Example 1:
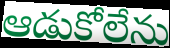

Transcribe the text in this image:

ఆడుకోలేను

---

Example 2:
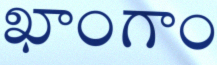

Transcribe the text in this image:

ఖాంగాం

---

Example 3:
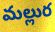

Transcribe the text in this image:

మల్లుర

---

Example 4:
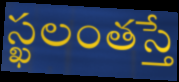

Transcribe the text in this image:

స్ఖలంతస్తే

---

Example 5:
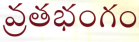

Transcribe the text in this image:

వ్రతభంగం